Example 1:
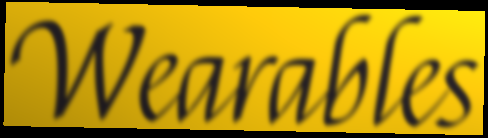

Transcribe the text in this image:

Wearables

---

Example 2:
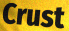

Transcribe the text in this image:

Crust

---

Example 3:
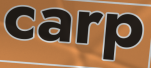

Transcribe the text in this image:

carp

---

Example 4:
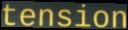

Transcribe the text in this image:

tension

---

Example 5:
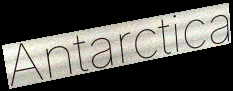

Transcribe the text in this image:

Antarctica